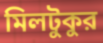
মিলটুকুর